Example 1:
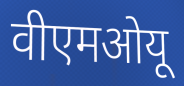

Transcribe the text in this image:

वीएमओयू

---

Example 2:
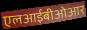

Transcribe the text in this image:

एलआईबीओआर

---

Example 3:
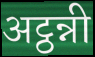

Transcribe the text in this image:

अट्ठन्नी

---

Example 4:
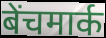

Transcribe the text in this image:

बेंचमार्क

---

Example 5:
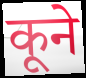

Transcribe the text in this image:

कूने